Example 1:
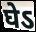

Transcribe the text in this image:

घेऽ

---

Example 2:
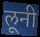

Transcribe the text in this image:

लूनी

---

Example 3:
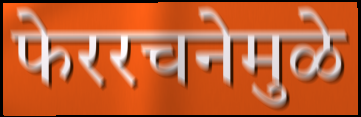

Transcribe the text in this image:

फेररचनेमुळे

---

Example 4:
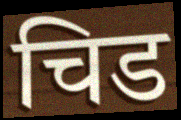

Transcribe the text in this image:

चिड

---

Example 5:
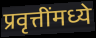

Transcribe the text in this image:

प्रवृत्तींमध्ये